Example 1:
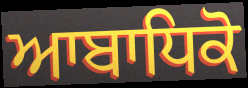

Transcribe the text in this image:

ਆਬਾਧਿਕੋ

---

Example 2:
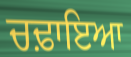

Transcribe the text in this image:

ਚਢ਼ਾਇਆ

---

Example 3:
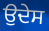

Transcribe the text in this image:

ਉਦੇਸ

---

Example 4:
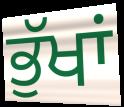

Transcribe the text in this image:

ਭੁੱਖਾਂ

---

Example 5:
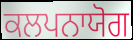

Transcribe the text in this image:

ਕਲਪਨਾਯੋਗ